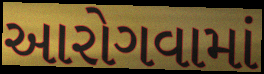
આરોગવામાં